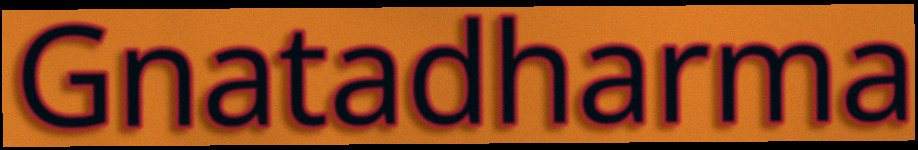
Gnatadharma